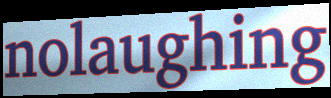
nolaughing